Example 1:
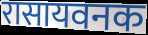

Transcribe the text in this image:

रासायवनक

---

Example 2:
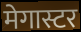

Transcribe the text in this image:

मेगास्टर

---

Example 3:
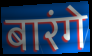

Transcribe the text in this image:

बारंगे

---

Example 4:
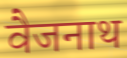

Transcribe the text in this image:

वैजनाथ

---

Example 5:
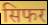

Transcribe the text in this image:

सिफर